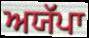
ਅਯੱਪਾ